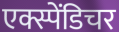
एक्स्पेंडिचर